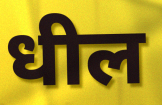
धील